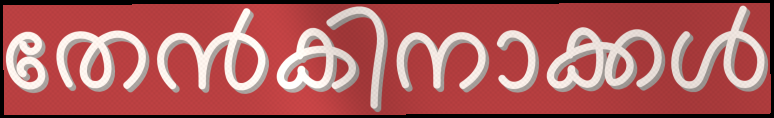
തേൻകിനാക്കൾ